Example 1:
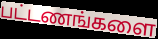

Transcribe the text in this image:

பட்டணங்களை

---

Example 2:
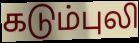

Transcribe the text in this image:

கடும்புலி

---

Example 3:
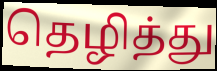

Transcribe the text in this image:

தெழித்து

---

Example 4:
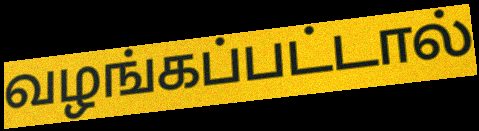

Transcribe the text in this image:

வழங்கப்பட்டால்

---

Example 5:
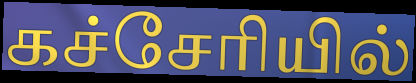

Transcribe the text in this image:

கச்சேரியில்